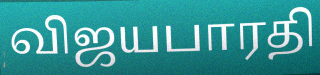
விஜயபாரதி